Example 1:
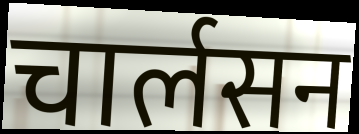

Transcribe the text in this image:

चार्लसन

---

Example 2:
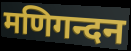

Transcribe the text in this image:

मणिगन्दन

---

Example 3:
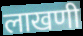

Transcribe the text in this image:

लाखणी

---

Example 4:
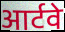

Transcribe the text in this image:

आर्टवे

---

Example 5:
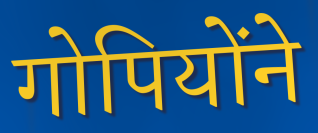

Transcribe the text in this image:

गोपियोंने